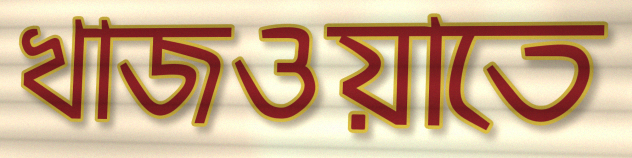
খাজওয়াতে